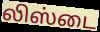
லிஸ்டை